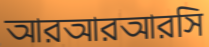
আরআরআরসি